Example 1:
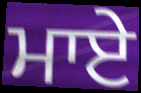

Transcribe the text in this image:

ਮਾਏ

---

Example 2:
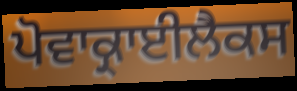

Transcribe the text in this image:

ਪੋਵਾਕ੍ਰਾਈਲੈਕਸ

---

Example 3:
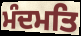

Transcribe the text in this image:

ਮੰਦਮਤਿ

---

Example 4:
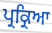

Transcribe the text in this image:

ਪ੍ਰਕ੍ਰਿਆ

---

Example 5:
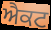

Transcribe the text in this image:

ਐਕਟ